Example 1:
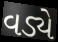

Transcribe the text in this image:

વડ્યે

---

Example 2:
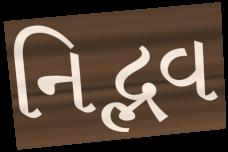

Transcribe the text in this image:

નિદ્ભવ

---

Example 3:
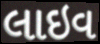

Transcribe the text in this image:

લાઇવ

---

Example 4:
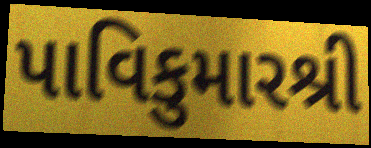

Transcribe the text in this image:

પાવિકુમારશ્રી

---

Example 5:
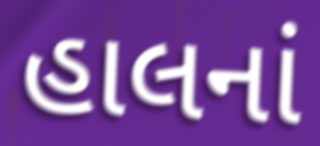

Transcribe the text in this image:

હાલનાં